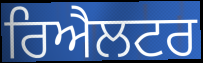
ਰਿਐਲਟਰ